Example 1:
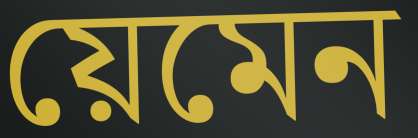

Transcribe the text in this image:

য়েমেন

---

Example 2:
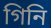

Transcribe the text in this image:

গিনি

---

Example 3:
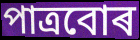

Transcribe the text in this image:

পাত্ৰবোৰ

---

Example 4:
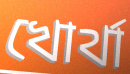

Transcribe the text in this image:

খোৰ্থা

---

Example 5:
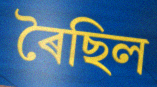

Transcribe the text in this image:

ৰৈছিল